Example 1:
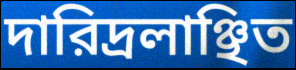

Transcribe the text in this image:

দারিদ্রলাঞ্ছিত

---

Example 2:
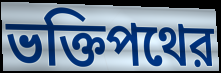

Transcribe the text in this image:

ভক্তিপথের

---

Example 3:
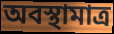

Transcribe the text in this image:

অবস্থামাত্র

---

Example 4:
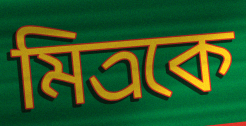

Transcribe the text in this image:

মিত্রকে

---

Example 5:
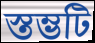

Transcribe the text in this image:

স্তম্ভটি